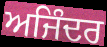
ਅਜਿੰਦਰ